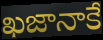
ఖజానాకే